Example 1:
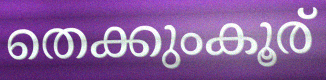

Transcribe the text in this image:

തെക്കുംകൂര്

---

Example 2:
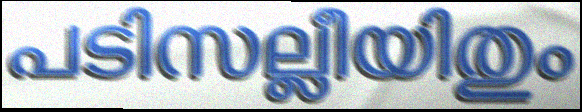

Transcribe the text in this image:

പടിസല്ലീയിതും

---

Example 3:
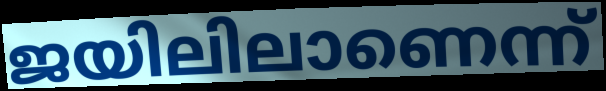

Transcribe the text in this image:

ജയിലിലാണെന്ന്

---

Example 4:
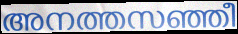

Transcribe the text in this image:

അനത്തസഞ്ഞീ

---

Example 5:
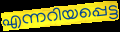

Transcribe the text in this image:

എന്നറിയപ്പെട്ട